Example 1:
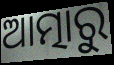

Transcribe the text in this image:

ଆତ୍ମାରୁ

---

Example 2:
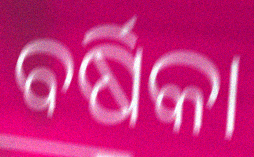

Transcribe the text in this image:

ବର୍ଷିକା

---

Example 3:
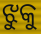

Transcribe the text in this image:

ଝୁକୁ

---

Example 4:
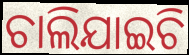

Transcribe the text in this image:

ଚାଲିଯାଇଚି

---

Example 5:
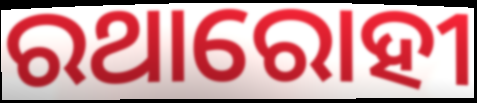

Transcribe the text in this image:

ରଥାରୋହୀ